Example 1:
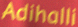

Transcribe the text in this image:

Adihalli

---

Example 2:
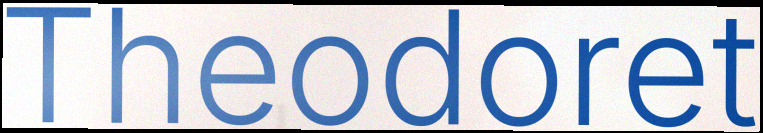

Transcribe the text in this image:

Theodoret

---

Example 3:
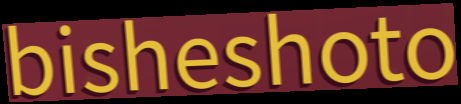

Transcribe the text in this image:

bisheshoto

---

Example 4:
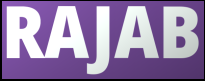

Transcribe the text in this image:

RAJAB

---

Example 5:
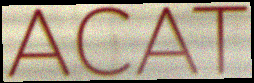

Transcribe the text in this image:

ACAT